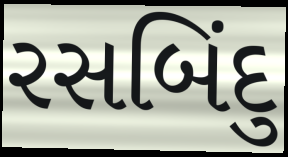
રસબિંદુ